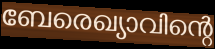
ബേരെഖ്യാവിന്റെ